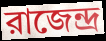
রাজেন্দ্র